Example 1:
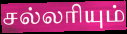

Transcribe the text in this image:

சல்லரியும்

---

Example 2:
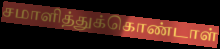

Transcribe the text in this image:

சமாளித்துக்கொண்டாள்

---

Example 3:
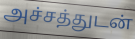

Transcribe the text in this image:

அச்சத்துடன்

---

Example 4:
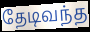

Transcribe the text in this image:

தேடிவந்த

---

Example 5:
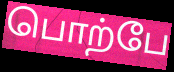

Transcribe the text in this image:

பொற்பே